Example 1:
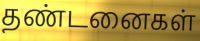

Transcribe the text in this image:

தண்டனைகள்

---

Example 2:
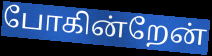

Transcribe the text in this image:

போகின்றேன்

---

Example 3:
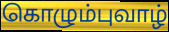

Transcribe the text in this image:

கொழும்புவாழ்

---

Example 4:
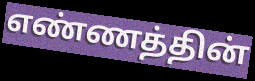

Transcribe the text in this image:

எண்ணத்தின்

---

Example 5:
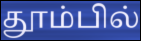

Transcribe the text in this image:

தூம்பில்